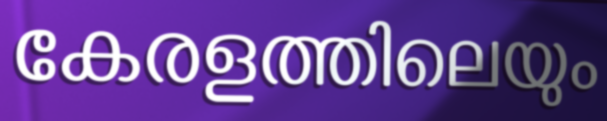
കേരളത്തിലെയും